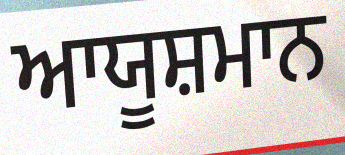
ਆਯੂਸ਼ਮਾਨ